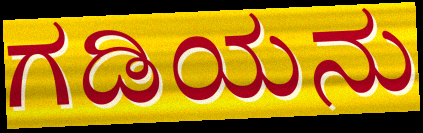
ಗಡಿಯನು